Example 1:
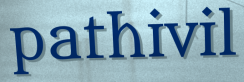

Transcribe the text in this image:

pathivil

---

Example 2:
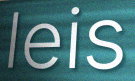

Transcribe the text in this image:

leis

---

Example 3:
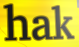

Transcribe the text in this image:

hak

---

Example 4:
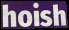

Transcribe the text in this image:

hoish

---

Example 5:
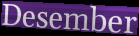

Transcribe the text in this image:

Desember